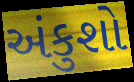
અંકુશો